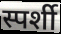
स्पर्शी